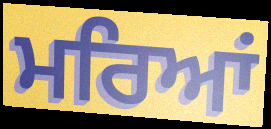
ਮਰਿਆਂ